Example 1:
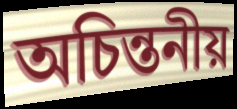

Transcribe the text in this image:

অচিন্তনীয়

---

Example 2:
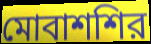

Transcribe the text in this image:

মোবাশশির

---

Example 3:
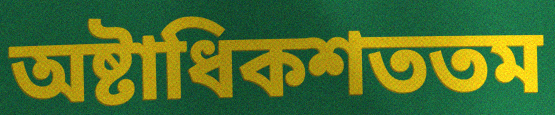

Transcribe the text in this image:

অষ্টাধিকশততম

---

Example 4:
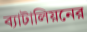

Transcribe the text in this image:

ব্যাটালিয়নের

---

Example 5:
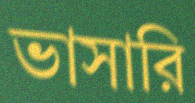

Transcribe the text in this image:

ভাসারি